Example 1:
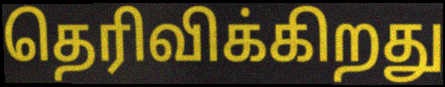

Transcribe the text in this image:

தெரிவிக்கிறது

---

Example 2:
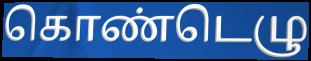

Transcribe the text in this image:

கொண்டெழு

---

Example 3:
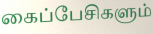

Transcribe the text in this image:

கைப்பேசிகளும்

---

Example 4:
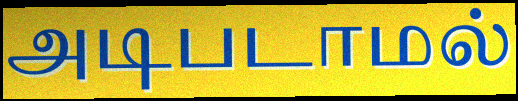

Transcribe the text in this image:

அடிபடாமல்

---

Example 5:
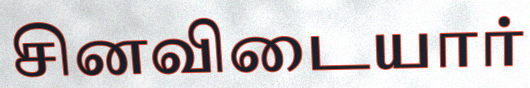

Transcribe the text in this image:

சினவிடையார்